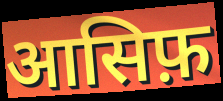
आसिफ़